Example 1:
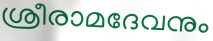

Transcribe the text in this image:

ശ്രീരാമദേവനും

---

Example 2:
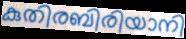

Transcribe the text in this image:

കുതിരബിരിയാനി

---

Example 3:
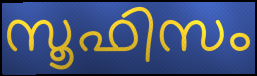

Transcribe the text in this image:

സൂഫിസം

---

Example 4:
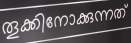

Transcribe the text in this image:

തൂക്കിനോക്കുന്നത്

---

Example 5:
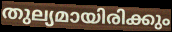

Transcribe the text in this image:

തുല്യമായിരിക്കും